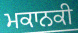
ਮਕਾਨਕੀ